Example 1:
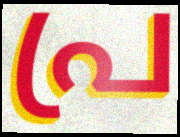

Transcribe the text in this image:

പ്ര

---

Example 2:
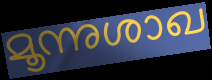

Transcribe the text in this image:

മൂന്നുശാഖ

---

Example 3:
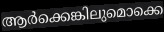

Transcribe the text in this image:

ആർക്കെങ്കിലുമൊക്കെ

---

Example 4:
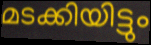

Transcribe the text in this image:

മടക്കിയിട്ടും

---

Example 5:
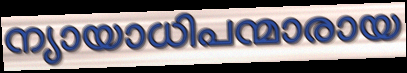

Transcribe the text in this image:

ന്യായാധിപന്മാരായ